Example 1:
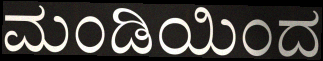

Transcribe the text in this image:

ಮಂಡಿಯಿಂದ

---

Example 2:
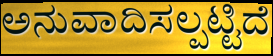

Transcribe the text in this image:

ಅನುವಾದಿಸಲ್ಪಟ್ಟಿದೆ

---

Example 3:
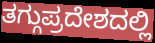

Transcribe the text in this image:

ತಗ್ಗುಪ್ರದೇಶದಲ್ಲಿ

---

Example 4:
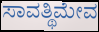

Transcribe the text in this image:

ಸಾವತ್ಥಿಮೇವ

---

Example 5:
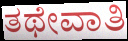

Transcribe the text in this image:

ತಥೇವಾತಿ